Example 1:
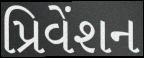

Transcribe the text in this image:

પ્રિવેંશન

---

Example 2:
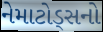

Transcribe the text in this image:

નેમાટોડ્સનો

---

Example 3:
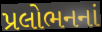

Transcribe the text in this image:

પ્રલોભનનાં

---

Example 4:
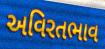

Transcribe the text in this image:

અવિરતભાવ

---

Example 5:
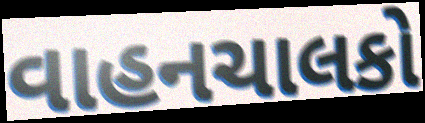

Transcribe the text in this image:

વાહનચાલકો